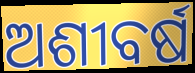
ଅଶୀବର୍ଷ